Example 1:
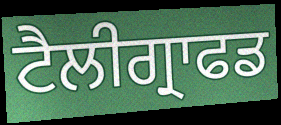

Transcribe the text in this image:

ਟੈਲੀਗ੍ਰਾਫਡ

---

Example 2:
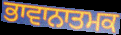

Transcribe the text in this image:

ਭਾਵਾਨਾਤਮਕ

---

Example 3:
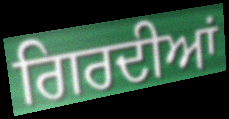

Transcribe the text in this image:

ਗਿਰਦੀਆਂ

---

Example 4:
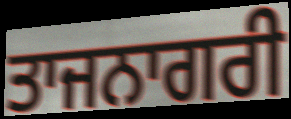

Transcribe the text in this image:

ਤਾਜਨਾਗਰੀ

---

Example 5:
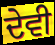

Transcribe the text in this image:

ਦੇਵੀ